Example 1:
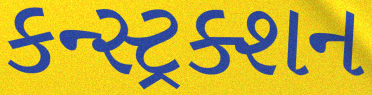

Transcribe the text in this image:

કન્સ્ટ્રક્શન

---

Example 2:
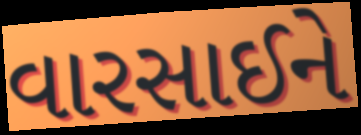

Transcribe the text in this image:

વારસાઈને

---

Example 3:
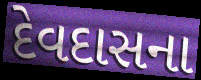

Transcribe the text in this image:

દેવદાસના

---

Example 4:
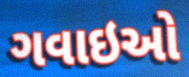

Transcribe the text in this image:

ગવાઇઓ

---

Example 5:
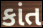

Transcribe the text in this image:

કાંત